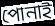
পোনাই